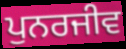
ਪੁਨਰਜੀਵ